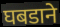
घबडाने